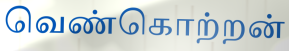
வெண்கொற்றன்